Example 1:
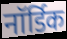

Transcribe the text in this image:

नॉर्डिक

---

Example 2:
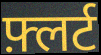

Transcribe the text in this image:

फ़्लर्ट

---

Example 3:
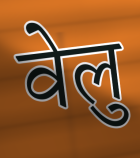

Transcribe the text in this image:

वेलु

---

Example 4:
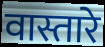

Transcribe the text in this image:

वास्तारे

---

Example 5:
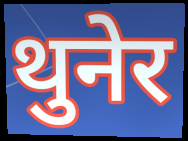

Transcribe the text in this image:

थुनेर